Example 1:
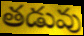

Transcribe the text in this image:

తడువు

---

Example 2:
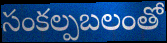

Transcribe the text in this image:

సంకల్పబలంతో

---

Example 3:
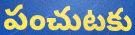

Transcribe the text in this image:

పంచుటకు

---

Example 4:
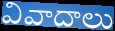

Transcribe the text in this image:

వివాదాలు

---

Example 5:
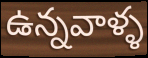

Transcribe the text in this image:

ఉన్నవాళ్ళ